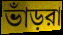
ভাঁড়রা